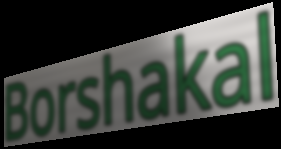
Borshakal